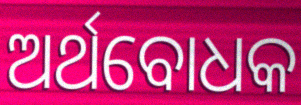
ଅର୍ଥବୋଧକ